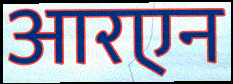
आरएन